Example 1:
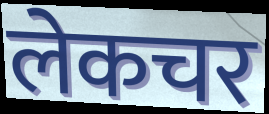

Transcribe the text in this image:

लेकचर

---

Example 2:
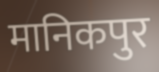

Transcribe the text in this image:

मानिकपुर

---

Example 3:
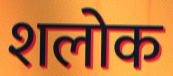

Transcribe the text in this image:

शलोक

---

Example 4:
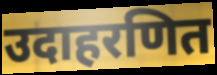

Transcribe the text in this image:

उदाहरणित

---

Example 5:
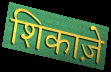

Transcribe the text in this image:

शिकाज़े